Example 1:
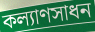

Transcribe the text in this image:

কল্যাণসাধন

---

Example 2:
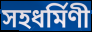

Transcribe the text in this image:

সহধর্মিণী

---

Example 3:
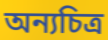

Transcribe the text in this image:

অন্যচিত্র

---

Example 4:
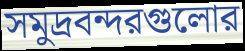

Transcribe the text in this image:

সমুদ্রবন্দরগুলোর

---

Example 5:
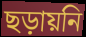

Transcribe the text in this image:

ছড়ায়নি